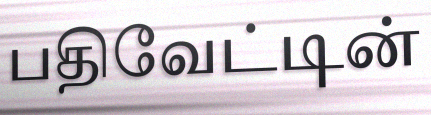
பதிவேட்டின்